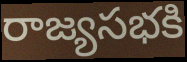
రాజ్యసభకి